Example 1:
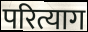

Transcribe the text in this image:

परित्याग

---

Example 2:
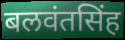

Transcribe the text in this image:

बलवंतसिंह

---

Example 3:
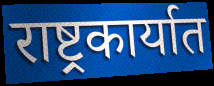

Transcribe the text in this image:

राष्ट्रकार्यात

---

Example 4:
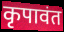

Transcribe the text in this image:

कृपावंत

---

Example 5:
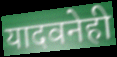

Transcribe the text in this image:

यादवनेही